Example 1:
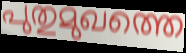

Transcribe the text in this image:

പുതുമുഖത്തെ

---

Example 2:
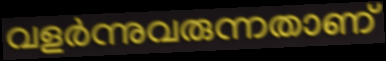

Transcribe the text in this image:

വളർന്നുവരുന്നതാണ്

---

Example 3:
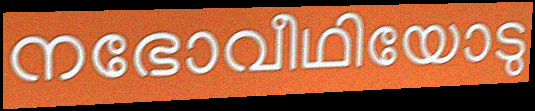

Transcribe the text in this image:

നഭോവീഥിയോടു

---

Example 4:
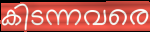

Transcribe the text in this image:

കിടന്നവരെ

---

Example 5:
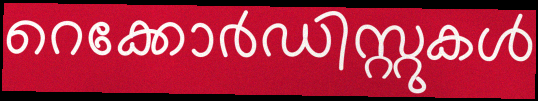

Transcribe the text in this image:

റെക്കോർഡിസ്റ്റുകൾ